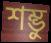
শম্ভু